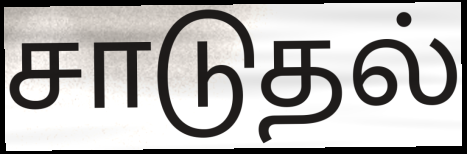
சாடுதல்